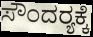
ಸೌಂದರ‍್ಯಕ್ಕೆ